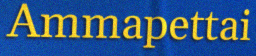
Ammapettai